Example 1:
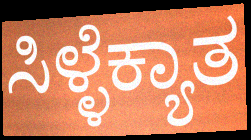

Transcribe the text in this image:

ಸಿಳ್ಳೆಕ್ಯಾತ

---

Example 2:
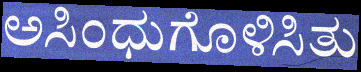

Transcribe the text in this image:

ಅಸಿಂಧುಗೊಳಿಸಿತು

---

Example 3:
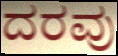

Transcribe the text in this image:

ದರವು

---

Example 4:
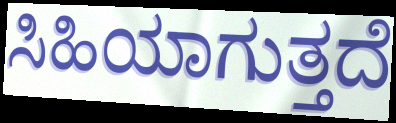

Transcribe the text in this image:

ಸಿಹಿಯಾಗುತ್ತದೆ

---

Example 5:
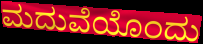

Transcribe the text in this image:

ಮದುವೆಯೊಂದು